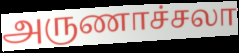
அருணாச்சலா